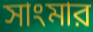
সাংমার